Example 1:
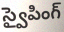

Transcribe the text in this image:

స్వైపింగ్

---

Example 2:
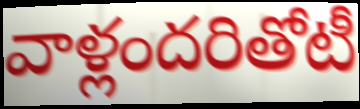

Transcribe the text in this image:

వాళ్లందరితోటీ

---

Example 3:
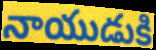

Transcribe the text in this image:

నాయుడుకి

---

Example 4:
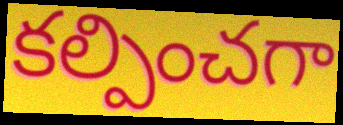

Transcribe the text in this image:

కల్పించగా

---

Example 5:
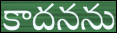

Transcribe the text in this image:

కాదనను